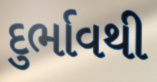
દુર્ભાવથી